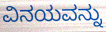
ವಿನಯವನ್ನು